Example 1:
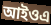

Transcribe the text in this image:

আইওএ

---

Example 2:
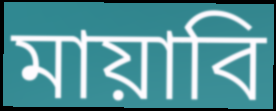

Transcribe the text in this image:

মায়াবি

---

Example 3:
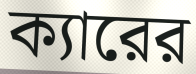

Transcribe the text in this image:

ক্যারের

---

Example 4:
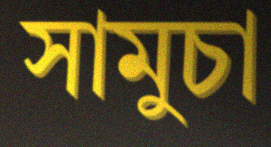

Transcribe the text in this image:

সামুচা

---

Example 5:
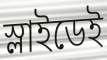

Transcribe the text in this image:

স্লাইডেই